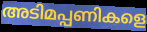
അടിമപ്പണികളെ